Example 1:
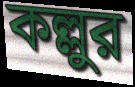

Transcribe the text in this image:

কল্লুর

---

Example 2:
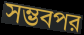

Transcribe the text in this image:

সম্ভবপর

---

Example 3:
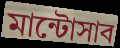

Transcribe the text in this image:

মান্টোসাব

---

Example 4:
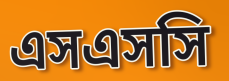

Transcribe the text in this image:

এসএসসি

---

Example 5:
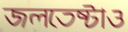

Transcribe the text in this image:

জলতেষ্টাও